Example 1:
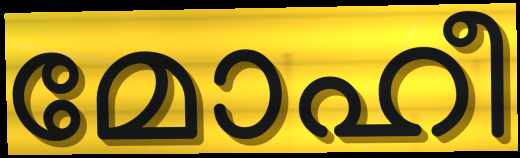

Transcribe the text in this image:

മോഹീ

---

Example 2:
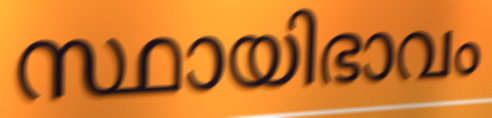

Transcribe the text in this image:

സ്ഥായിഭാവം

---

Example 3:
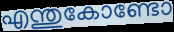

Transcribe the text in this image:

എന്തുകോണ്ടോ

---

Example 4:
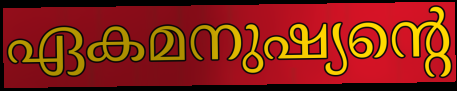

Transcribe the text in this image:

ഏകമനുഷ്യന്റെ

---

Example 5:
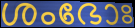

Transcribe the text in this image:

ശംഭോഃ